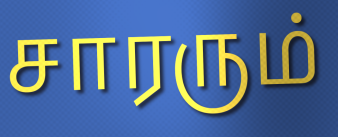
சாரரும்